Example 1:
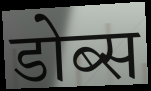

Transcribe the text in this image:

डोब्स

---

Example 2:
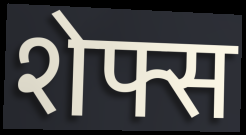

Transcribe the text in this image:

शेफ्स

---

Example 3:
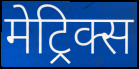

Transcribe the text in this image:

मेट्रिक्स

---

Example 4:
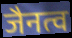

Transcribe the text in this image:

जैनत्व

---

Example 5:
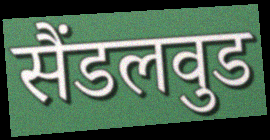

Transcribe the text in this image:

सैंडलवुड